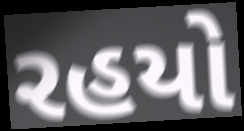
રહયો